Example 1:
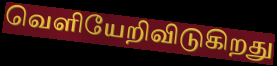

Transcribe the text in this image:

வெளியேறிவிடுகிறது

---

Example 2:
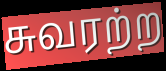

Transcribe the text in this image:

சுவரற்ற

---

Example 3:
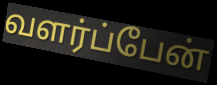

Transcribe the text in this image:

வளர்ப்பேன்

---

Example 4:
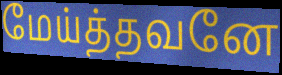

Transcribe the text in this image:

மேய்த்தவனே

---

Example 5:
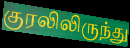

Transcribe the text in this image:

குரலிலிருந்து